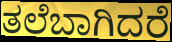
ತಲೆಬಾಗಿದರೆ